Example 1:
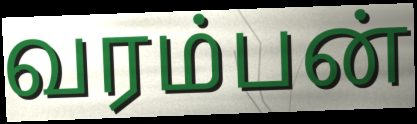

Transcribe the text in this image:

வரம்பன்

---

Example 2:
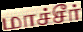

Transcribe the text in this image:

மாச்சீர்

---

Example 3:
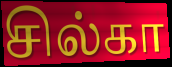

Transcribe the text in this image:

சில்கா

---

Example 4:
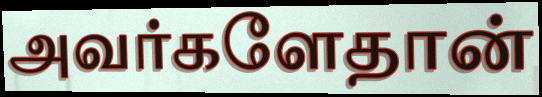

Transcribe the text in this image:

அவர்களேதான்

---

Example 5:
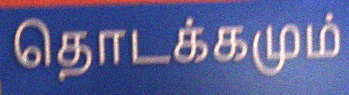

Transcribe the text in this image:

தொடக்கமும்